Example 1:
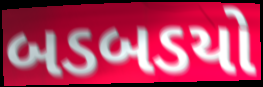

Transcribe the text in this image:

બડબડયો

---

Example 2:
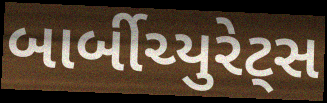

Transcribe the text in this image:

બાર્બીચ્યુરેટ્સ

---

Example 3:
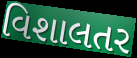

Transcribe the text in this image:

વિશાલતર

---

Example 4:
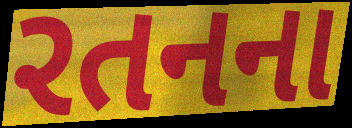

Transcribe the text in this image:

રતનના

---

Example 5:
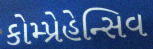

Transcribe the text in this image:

કોમ્પ્રેહેન્સિવ